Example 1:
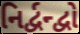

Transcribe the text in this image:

નિર્દ્વન્દ્વો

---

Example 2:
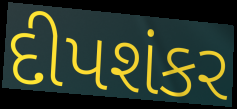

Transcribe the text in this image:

દીપશંકર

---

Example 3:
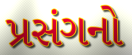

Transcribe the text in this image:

પ્રસંગનો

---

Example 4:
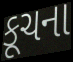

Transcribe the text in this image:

કૂચના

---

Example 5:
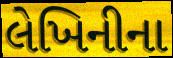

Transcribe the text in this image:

લેખિનીના